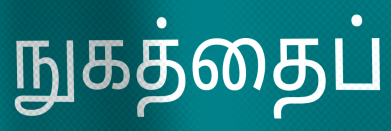
நுகத்தைப்